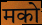
मको